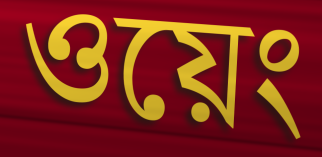
ওয়েং